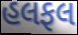
હલફલ